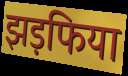
झड़फिया